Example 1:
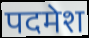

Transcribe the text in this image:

पदमेश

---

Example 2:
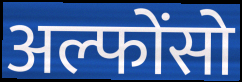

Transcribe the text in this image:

अल्फोंसो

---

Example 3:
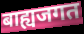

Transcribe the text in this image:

बाह्यजगत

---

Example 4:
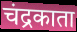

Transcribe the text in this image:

चंद्रकाता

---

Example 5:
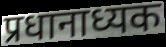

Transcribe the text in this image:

प्रधानाध्यक